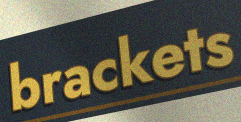
brackets